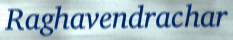
Raghavendrachar